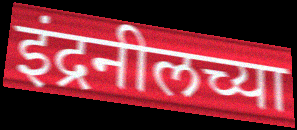
इंद्रनीलच्या